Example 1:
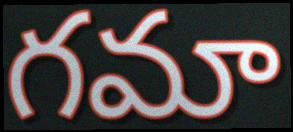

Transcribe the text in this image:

గమా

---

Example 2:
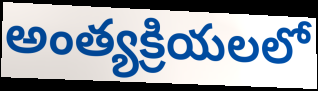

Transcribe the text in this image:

అంత్యక్రియలలో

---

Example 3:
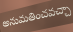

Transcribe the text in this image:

అనుమతించవచ్చా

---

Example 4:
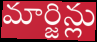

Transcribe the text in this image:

మార్జిన్లు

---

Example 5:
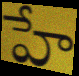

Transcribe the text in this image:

హే